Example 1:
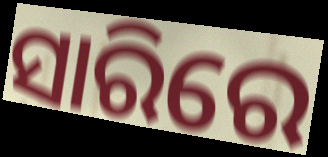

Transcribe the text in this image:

ସାରିରେ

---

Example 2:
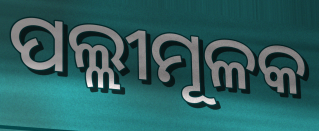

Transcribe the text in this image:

ପଲ୍ଲୀମୂଳକ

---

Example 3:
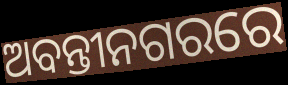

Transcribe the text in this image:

ଅବନ୍ତୀନଗରରେ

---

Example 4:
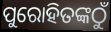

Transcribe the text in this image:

ପୁରୋହିତଙ୍କଠୁଁ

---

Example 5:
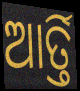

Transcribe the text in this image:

ଆର୍ତ୍ତି